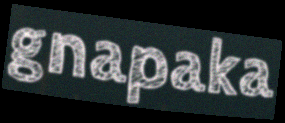
gnapaka